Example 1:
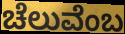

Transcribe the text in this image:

ಚೆಲುವೆಂಬ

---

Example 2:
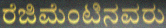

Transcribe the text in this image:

ರೆಜಿಮೆಂಟಿನವರು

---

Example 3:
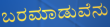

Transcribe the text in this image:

ಬರಮಾಡುವೆನು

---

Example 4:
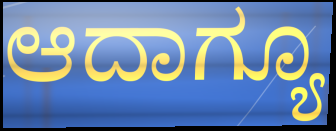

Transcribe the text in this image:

ಆದಾಗ್ಯೂ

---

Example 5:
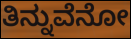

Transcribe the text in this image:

ತಿನ್ನುವೆನೋ